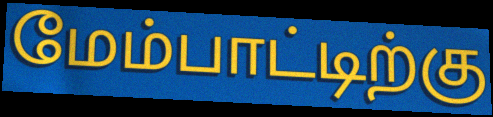
மேம்பாட்டிற்கு